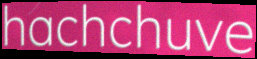
hachchuve